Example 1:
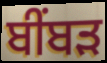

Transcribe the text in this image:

ਬੀਂਬੜ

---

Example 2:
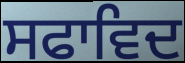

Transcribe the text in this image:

ਸਫਾਵਿਦ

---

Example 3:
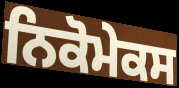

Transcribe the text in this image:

ਨਿਕੋਮੇਕਸ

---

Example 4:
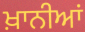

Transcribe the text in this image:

ਖ਼ਾਨੀਆਂ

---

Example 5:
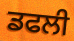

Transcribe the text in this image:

ਡਫਲੀ